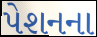
પેશનના